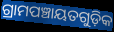
ଗ୍ରାମପଞ୍ଚାୟତଗୁଡ଼ିକ